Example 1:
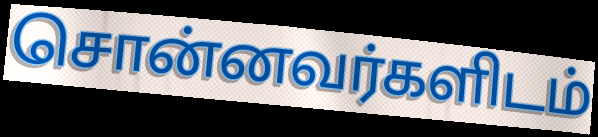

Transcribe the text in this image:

சொன்னவர்களிடம்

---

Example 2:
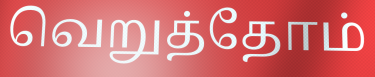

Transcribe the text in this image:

வெறுத்தோம்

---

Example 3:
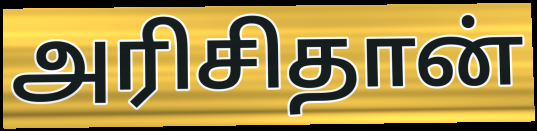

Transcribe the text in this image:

அரிசிதான்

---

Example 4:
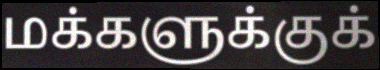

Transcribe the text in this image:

மக்களுக்குக்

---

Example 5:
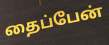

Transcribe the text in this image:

தைப்பேன்